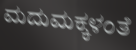
ಮದುಮಕ್ಕಳಂತೆ